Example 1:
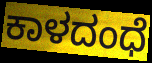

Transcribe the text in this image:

ಕಾಳದಂಧೆ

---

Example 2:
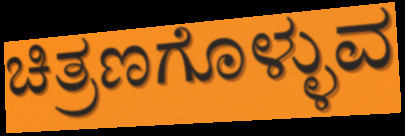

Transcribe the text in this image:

ಚಿತ್ರಣಗೊಳ್ಳುವ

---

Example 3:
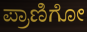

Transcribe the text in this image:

ಪ್ರಾಣಿಗೋ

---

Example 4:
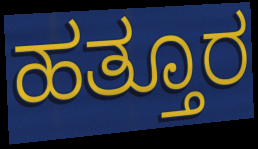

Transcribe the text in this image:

ಹತ್ತೂರ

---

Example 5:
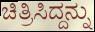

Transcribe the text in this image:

ಚಿತ್ರಿಸಿದ್ದನ್ನು